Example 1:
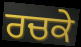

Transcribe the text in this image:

ਰਚਕੇ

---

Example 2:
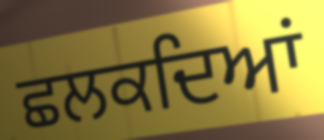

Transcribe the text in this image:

ਛਲਕਦਿਆਂ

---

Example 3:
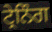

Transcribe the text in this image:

ਟ੍ਰੇਨਿੰਗ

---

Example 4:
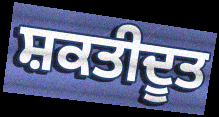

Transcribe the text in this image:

ਸ਼ਕਤੀਦੂਤ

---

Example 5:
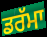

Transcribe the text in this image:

ਡਰੱਮਾ